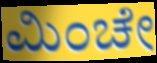
ಮಿಂಚೇ